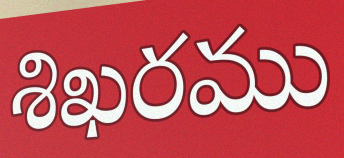
శిఖరము